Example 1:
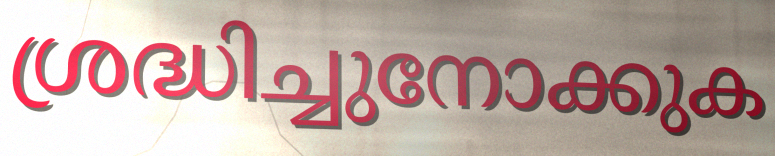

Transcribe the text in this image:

ശ്രദ്ധിച്ചുനോക്കുക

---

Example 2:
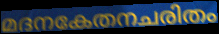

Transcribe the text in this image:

മദനകേതനചരിതം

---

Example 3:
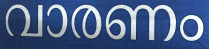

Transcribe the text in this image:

വാരണം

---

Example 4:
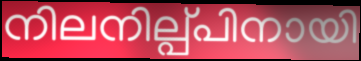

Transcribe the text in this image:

നിലനില്പ്പിനായി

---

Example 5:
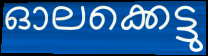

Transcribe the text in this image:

ഓലക്കെട്ടു